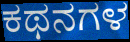
ಕಥನಗಳ